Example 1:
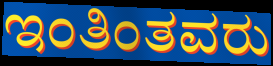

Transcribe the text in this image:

ಇಂತಿಂತವರು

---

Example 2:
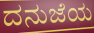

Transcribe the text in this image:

ದನುಜೆಯ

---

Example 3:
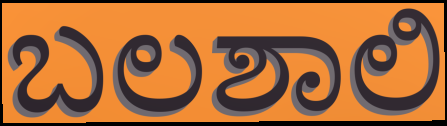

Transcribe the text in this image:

ಬಲಶಾಲಿ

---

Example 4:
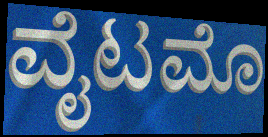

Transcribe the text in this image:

ವೈಟಮೊ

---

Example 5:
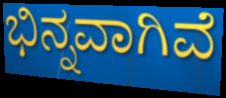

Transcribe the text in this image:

ಭಿನ್ನವಾಗಿವೆ